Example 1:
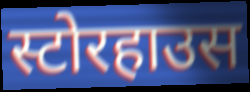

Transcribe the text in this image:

स्टोरहाउस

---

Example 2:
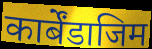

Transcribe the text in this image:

कार्बेंडाजिम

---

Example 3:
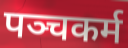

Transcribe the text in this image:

पञ्चकर्म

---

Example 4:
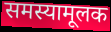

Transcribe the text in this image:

समस्यामूलक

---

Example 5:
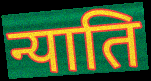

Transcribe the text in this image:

न्याति